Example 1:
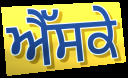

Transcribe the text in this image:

ਐੱਸਕੇ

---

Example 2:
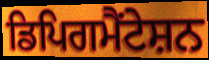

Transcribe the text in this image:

ਡਿਪਿਗਮੈਂਟੇਸ਼ਨ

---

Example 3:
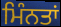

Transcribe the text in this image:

ਮਿੰਨਤਾਂ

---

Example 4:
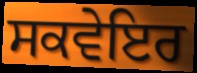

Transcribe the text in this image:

ਸਕਵੇਇਰ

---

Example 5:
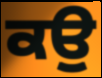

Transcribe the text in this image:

ਕਉੁ